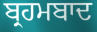
ਬ੍ਰਹਮਬਾਦ